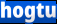
hogtu